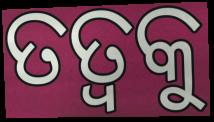
ତତ୍ୱକୁ